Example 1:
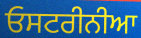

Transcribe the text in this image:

ਓਸਟਰੀਨੀਆ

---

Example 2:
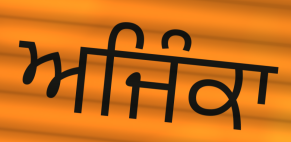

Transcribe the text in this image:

ਅਜਿੰਕਾ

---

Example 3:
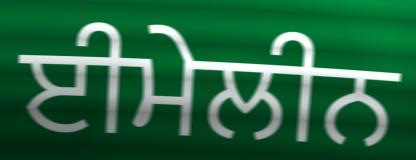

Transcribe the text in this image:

ਈਮੇਲੀਨ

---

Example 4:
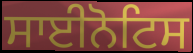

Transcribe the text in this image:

ਸਾਈਨੋਟਿਸ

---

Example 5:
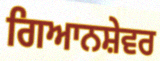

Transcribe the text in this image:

ਗਿਆਨਸ਼ੇਵਰ